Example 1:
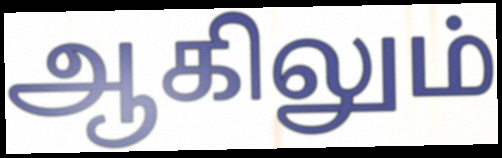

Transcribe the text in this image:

ஆகிலும்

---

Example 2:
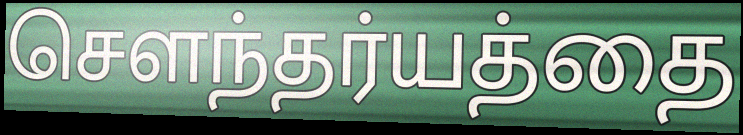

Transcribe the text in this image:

செளந்தர்யத்தை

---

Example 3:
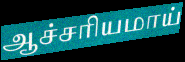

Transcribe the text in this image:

ஆச்சரியமாய்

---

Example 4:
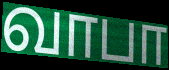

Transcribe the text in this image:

வாபா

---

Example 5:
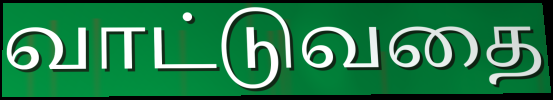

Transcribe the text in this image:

வாட்டுவதை